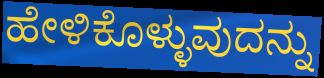
ಹೇಳಿಕೊಳ್ಳುವುದನ್ನು